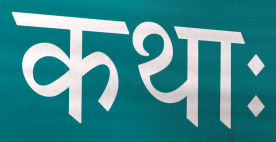
कथाः